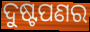
ଦୁଷ୍ଟପଣର